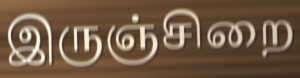
இருஞ்சிறை